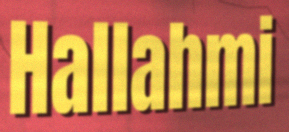
Hallahmi